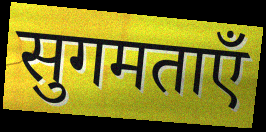
सुगमताएँ